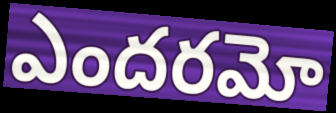
ఎందరమో